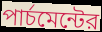
পার্চমেন্টের